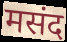
मसंद